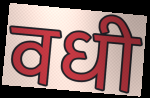
वधी